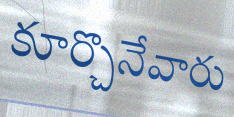
కూర్చొనేవారు